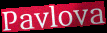
Pavlova